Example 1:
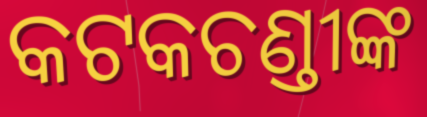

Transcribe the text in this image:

କଟକଚଣ୍ଡୀଙ୍କ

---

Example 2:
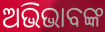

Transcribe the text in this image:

ଅଭିଭାବଙ୍କ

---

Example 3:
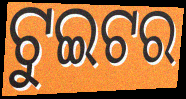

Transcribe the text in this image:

ଟୁଇଟର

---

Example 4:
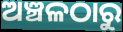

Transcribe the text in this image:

ଅଞ୍ଚଳଠାରୁ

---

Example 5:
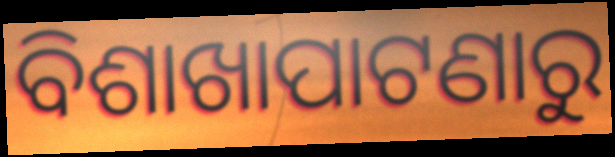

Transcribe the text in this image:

ବିଶାଖାପାଟଣାରୁ